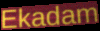
Ekadam